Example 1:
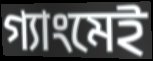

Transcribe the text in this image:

গ্যাংমেই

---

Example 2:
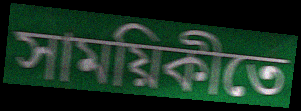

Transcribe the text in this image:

সাময়িকীতে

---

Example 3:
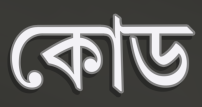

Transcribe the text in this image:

কোড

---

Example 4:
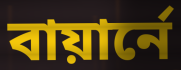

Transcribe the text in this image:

বায়ার্নে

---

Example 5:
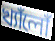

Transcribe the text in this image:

খ্যাঁলোঁ